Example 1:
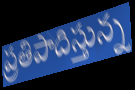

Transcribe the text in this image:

ప్రతిపాదిస్తున్న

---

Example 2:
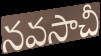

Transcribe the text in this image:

నవసాచీ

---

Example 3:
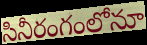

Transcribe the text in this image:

సినీరంగంలోనూ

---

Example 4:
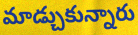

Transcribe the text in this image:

మాడ్చుకున్నారు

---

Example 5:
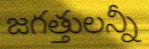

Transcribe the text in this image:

జగత్తులన్నీ